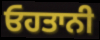
ਓਹਤਾਨੀ